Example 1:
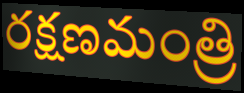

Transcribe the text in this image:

రక్షణమంత్రి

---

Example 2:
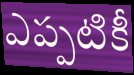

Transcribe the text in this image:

ఎప్పటికీ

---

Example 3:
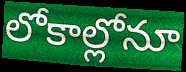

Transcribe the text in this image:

లోకాల్లోనూ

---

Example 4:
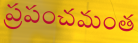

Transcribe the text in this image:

ప్రపంచమంత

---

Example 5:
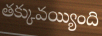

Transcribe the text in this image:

తక్కువయ్యింది